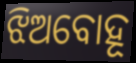
ଝିଅବୋହୂ